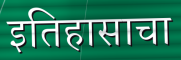
इतिहासाचा